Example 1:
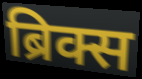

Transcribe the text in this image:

ब्रिक्स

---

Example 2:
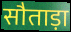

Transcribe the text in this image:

सौताड़ा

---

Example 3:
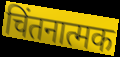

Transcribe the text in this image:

चिंतनात्मक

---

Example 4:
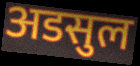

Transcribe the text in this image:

अडसुल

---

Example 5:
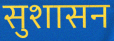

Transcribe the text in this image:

सुशासन